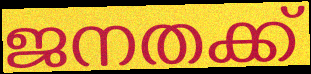
ജനതക്ക്